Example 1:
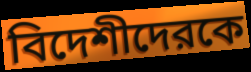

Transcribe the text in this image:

বিদেশীদেরকে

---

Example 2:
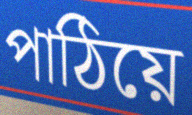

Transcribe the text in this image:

পাঠিয়ে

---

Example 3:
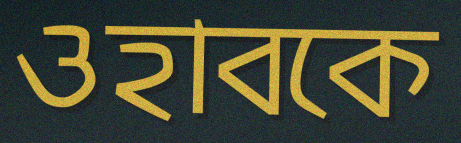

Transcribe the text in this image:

ওহাবকে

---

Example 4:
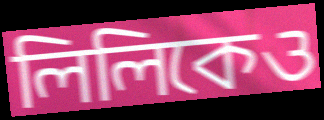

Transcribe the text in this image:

লিলিকেও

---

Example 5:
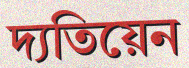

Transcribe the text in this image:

দ্যতিয়েন